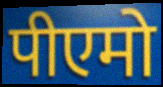
पीएमो